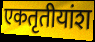
एकतृतीयांश